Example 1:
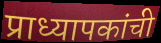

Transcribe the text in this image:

प्राध्यापकांची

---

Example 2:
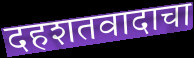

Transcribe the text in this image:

दहशतवादाचा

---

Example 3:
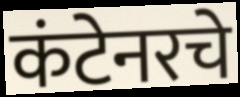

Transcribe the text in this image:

कंटेनरचे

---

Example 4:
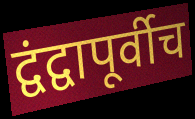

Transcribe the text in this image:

द्वंद्वापूर्वीच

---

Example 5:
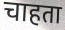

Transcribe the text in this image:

चाहता